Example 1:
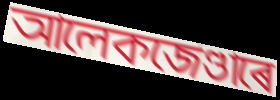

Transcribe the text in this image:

আলেকজেণ্ডাৰে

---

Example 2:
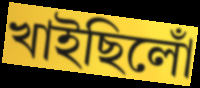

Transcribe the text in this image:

খাইছিলোঁ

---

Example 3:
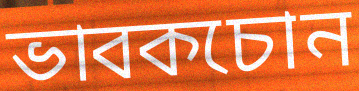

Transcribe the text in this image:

ভাবকচোন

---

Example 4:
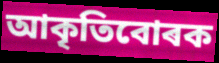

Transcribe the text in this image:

আকৃতিবোৰক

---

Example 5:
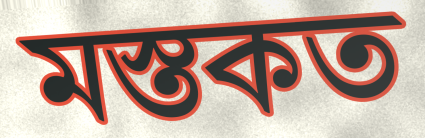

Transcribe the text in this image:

মস্তকত